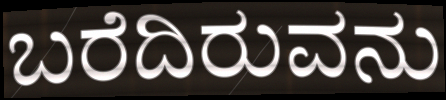
ಬರೆದಿರುವನು